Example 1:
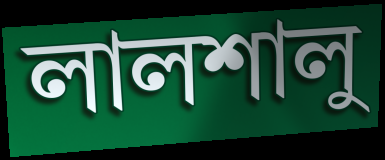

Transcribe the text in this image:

লালশালু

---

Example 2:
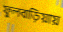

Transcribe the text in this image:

ফুলবাড়িয়ায়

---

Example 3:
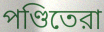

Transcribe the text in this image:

পণ্ডিতেরা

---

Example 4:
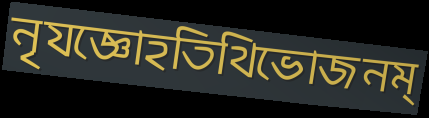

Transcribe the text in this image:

নৃযজ্ঞোহতিথিভোজনম্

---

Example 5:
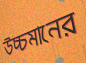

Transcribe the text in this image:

উচ্চমানের